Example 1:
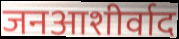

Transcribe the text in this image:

जनआशीर्वाद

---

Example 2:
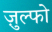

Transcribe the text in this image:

ज़ुल्फो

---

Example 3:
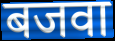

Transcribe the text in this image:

बजवा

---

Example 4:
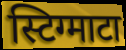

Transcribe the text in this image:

स्टिग्माटा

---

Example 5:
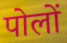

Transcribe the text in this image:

पोलों